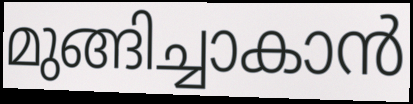
മുങ്ങിച്ചാകാൻ